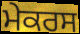
ਮੇਕਰਸ